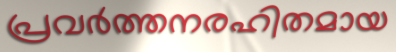
പ്രവർത്തനരഹിതമായ